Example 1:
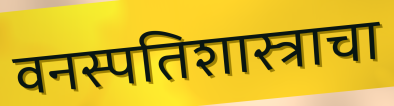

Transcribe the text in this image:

वनस्पतिशास्त्राचा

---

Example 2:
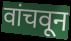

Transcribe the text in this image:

वांचवून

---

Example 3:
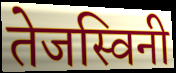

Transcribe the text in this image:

तेजस्विनी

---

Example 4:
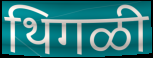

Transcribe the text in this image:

थिगळी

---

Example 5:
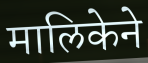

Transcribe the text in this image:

मालिकेने